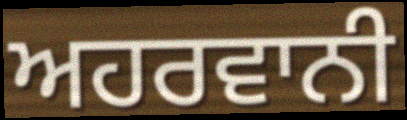
ਅਹਰਵਾਨੀ